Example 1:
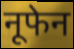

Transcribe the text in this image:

नूफेन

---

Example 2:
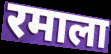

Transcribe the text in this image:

रमाला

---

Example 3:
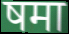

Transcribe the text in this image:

षमा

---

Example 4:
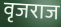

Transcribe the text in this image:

वृजराज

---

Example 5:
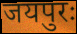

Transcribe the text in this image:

जयपुरः